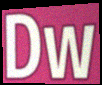
Dw